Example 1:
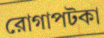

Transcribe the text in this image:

রোগাপটকা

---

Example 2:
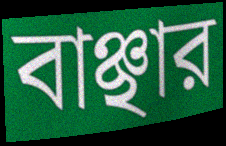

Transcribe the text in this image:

বাঞ্ছার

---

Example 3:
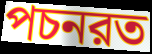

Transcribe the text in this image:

পচনরত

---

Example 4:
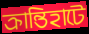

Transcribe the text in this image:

ক্রান্তিহাটে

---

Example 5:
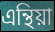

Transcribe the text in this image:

এন্থিয়া